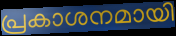
പ്രകാശനമായി